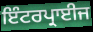
ਇੰਟਰਪ੍ਰਾਈਜ